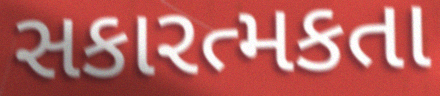
સકારત્મકતા